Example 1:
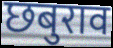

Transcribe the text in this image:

छबुराव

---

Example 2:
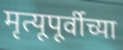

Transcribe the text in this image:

मृत्यूपूर्वीच्या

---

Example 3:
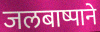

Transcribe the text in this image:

जलबाष्पाने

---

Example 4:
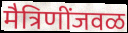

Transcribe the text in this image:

मैत्रिणींजवळ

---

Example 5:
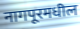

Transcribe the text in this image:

नागपूरमधील